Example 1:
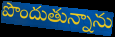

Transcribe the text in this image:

పొందుతున్నాను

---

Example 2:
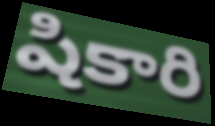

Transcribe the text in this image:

షికారి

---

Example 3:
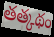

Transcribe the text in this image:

తత్కథం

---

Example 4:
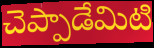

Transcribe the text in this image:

చెప్పాడేమిటి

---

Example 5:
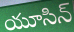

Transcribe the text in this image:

యూసిన్